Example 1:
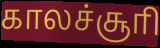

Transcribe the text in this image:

காலச்சூரி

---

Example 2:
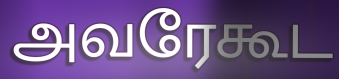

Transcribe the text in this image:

அவரேகூட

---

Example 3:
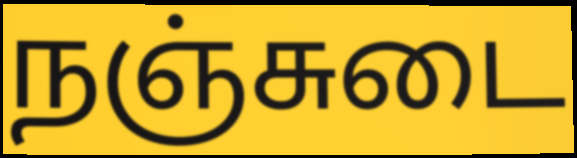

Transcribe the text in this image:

நஞ்சுடை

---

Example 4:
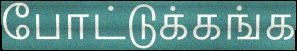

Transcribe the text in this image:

போட்டுக்கங்க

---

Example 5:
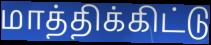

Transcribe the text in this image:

மாத்திக்கிட்டு